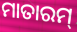
ମାତାରମ୍